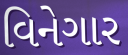
વિનેગાર